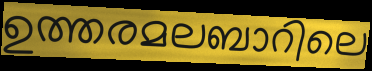
ഉത്തരമലബാറിലെ